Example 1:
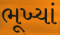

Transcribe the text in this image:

ભૂખ્યાં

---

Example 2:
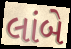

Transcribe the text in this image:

લાંબે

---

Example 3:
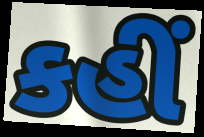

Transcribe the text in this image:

કહીં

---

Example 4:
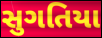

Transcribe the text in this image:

સુગતિયા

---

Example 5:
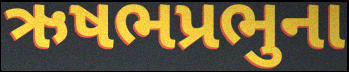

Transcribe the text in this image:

ઋષભપ્રભુના